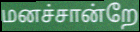
மனச்சான்றே